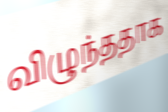
விழுந்ததாக